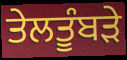
ਤੇਲਤੂੰਬੜੇ